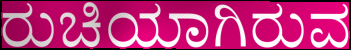
ರುಚಿಯಾಗಿರುವ